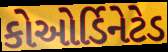
કોઓર્ડિનેટેડ